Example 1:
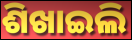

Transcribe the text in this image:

ଶିଖାଇଲି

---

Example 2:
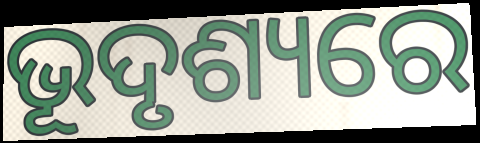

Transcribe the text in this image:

ଭୂଦୃଶ୍ୟରେ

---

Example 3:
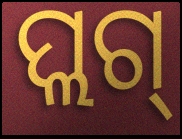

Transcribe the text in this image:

ପ୍ଲଗ୍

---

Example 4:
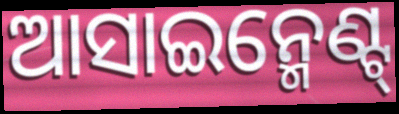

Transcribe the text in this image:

ଆସାଇନ୍ମେଣ୍ଟ୍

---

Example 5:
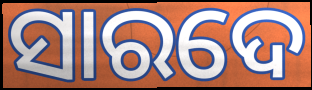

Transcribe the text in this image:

ସାରଦେ